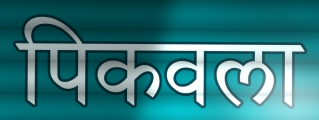
पिकवला